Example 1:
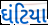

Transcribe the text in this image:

ઘંટિયા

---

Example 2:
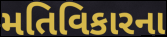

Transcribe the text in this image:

મતિવિકારના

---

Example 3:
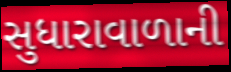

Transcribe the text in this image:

સુધારાવાળાની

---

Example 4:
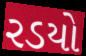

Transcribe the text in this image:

રડયો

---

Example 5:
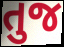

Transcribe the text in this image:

તુજ